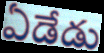
ఏడేడు